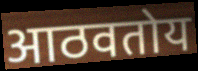
आठवतोय